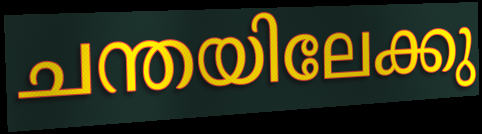
ചന്തയിലേക്കു